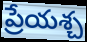
ప్రేయశ్చ